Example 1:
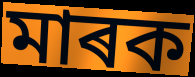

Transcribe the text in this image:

মাৰক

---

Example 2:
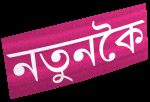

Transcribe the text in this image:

নতুনকৈ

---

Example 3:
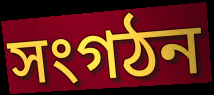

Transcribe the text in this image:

সংগঠন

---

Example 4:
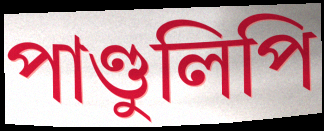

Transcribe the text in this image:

পাণ্ডুলিপি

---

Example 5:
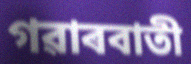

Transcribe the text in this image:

গৱাৰবাতী